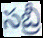
సబ్రీ